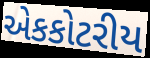
એકકોટરીય